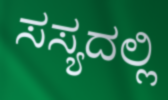
ಸಸ್ಯದಲ್ಲಿ